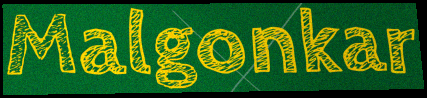
Malgonkar